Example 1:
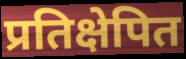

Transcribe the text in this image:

प्रतिक्षेपित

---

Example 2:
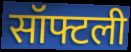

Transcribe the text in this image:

सॉफ्टली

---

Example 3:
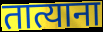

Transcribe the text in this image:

तात्याना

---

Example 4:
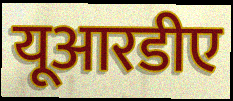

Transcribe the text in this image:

यूआरडीए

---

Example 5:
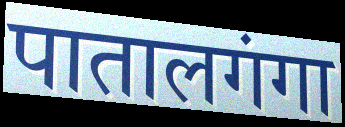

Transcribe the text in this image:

पातालगंगा